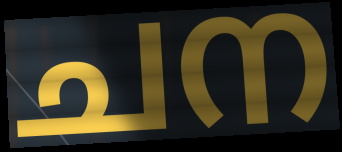
ചന